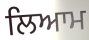
ਲਿਆਮ